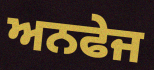
ਅਨਫੇਜ